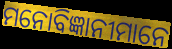
ମନୋବିଜ୍ଞାନୀମାନେ